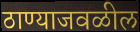
ठाण्याजवळील